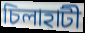
চিলাহাটী